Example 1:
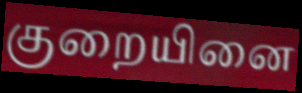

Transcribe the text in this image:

குறையினை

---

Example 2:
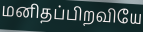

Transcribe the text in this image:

மனிதப்பிறவியே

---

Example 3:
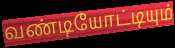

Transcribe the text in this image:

வண்டியோட்டியும்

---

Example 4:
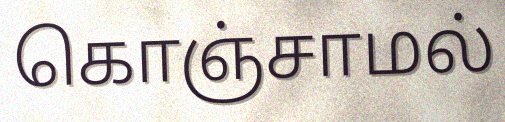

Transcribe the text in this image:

கொஞ்சாமல்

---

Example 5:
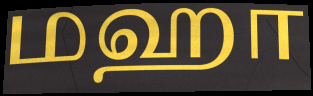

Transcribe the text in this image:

மஹா